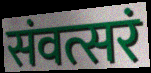
संवत्सरं